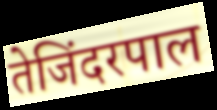
तेजिंदरपाल